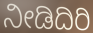
ನೀಡಿದಿರಿ